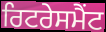
ਰਿਟਰੇਸਮੈਂਟ